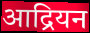
आद्रियन